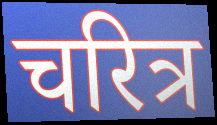
चरित्र